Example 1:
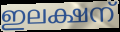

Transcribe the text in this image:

ഇലക്ഷന്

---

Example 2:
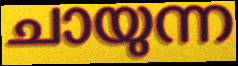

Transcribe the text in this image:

ചായുന്ന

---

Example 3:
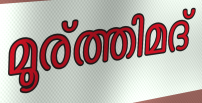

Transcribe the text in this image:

മൂര്ത്തിമദ്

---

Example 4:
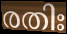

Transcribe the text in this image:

രതിഃ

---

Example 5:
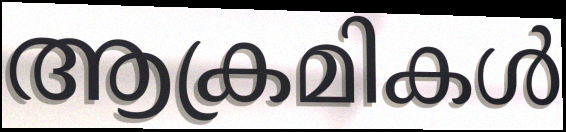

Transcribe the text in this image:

ആക്രമികൾ